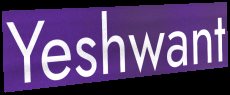
Yeshwant